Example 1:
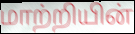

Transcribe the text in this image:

மாற்றியின்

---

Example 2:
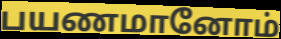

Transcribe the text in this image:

பயணமானோம்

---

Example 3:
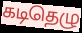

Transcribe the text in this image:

கடிதெழு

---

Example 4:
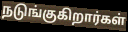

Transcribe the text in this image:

நடுங்குகிறார்கள்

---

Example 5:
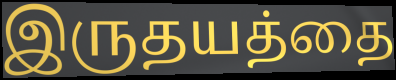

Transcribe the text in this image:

இருதயத்தை